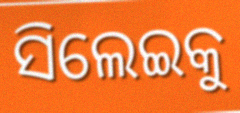
ସିଲେଇକୁ